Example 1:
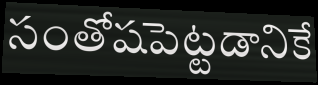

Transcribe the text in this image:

సంతోషపెట్టడానికే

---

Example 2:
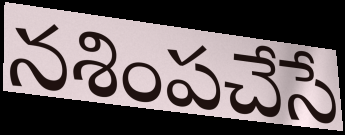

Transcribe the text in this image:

నశింపచేసే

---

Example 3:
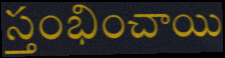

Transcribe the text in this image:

స్తంభించాయి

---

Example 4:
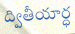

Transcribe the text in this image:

ద్వితీయార్ధ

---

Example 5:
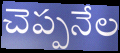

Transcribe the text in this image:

చెప్పనేల